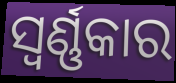
ସ୍ୱର୍ଣ୍ଣକାର